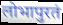
लोभापुरतं